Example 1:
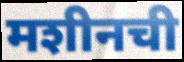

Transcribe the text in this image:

मशीनची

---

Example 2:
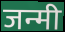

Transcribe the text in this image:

जन्मी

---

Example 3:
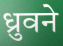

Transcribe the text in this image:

ध्रुवने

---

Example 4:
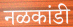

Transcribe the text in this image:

नळकांडी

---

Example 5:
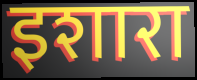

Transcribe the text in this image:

इशारा